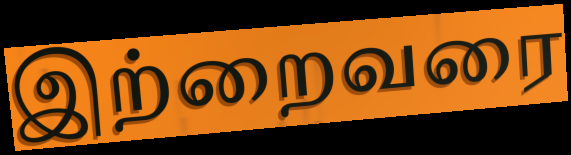
இற்றைவரை